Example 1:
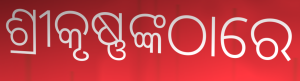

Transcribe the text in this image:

ଶ୍ରୀକୃଷ୍ଣଙ୍କଠାରେ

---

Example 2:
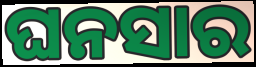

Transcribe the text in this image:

ଘନସାର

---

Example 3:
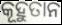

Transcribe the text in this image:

କୂହୁତାନ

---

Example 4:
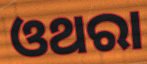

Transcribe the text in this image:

ଓଥରା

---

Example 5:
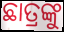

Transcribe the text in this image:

ଛାତ୍ରଙ୍କୁ